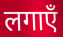
लगाएँ